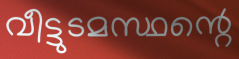
വീട്ടുടമസ്ഥന്റെ